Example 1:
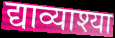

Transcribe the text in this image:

द्याव्याश्या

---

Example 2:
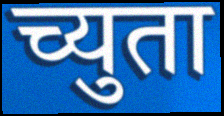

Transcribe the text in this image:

च्युता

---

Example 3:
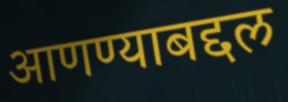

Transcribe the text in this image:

आणण्याबद्दल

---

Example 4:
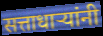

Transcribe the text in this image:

सत्ताधाऱ्यांनी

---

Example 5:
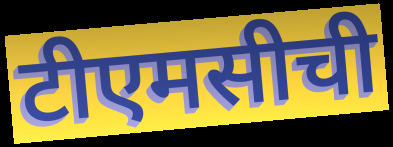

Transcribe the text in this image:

टीएमसीची